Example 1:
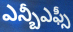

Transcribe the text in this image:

ఎన్బీఎఫ్సీ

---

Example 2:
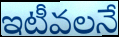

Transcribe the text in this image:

ఇటీవలనే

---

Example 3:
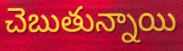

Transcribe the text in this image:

చెబుతున్నాయి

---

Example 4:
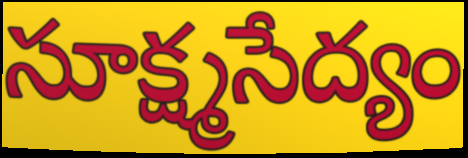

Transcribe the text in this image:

సూక్ష్మసేద్యం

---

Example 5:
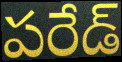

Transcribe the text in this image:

పరేడ్